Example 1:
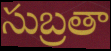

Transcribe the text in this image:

సుబ్రతా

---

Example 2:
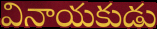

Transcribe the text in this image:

వినాయకుడు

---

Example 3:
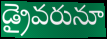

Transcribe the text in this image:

డ్రైవరునూ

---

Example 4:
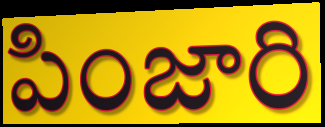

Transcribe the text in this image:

పింజారి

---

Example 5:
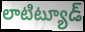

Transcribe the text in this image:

లాటిట్యూడ్